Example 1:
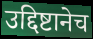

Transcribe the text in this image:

उद्दिष्टानेच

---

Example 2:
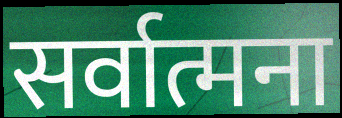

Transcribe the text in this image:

सर्वात्मना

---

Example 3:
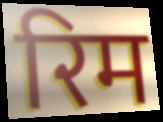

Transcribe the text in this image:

रिम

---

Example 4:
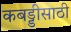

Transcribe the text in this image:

कबड्डीसाठी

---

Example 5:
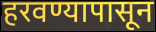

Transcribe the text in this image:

हरवण्यापासून